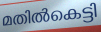
മതിൽകെട്ടി